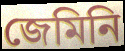
জেমিনি